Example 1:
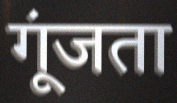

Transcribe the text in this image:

गूंजता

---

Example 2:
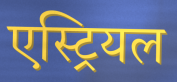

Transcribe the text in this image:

एस्ट्रियल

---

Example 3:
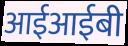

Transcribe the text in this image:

आईआईबी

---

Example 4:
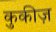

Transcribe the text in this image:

कुकीज़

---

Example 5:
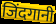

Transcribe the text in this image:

जिंदगानी